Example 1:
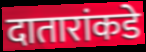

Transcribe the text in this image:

दातारांकडे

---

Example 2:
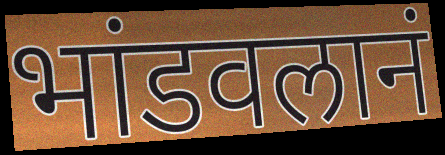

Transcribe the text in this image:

भांडवलानं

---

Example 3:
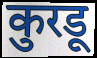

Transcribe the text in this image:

कुरडू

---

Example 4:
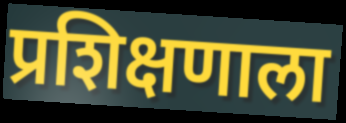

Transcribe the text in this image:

प्रशिक्षणाला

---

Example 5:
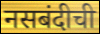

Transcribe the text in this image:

नसबंदीची